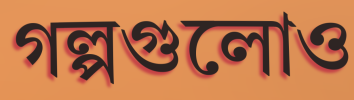
গল্পগুলোও